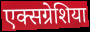
एक्सग्रेशिया